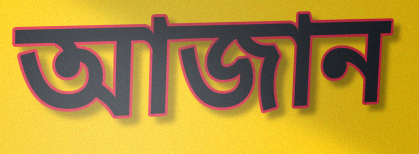
আজান